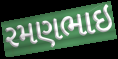
રમણભાઇ